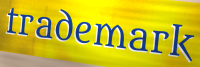
trademark